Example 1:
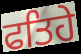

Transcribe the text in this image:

ਫਤਿਹੇ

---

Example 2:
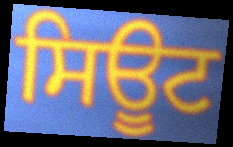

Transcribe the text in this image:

ਸਿਊਟ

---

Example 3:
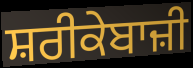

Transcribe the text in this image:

ਸ਼ਰੀਕੇਬਾਜ਼ੀ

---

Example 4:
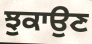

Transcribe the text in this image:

ਝੁਕਾਉਣ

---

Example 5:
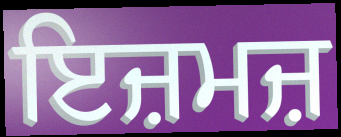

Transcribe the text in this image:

ਇਜ਼ਮਜ਼